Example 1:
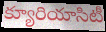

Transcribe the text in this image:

క్యూరియాసిటీ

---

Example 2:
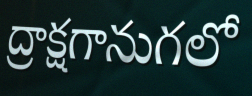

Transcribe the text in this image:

ద్రాక్షగానుగలో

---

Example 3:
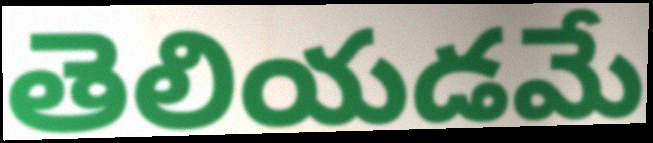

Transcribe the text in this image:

తెలియడమే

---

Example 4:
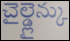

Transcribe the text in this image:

చైల్డ్లైన్కు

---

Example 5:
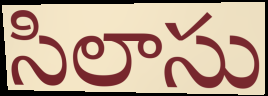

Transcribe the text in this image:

సిలాసు